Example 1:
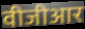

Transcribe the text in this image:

वीजीआर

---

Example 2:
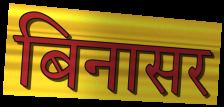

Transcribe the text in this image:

बिनासर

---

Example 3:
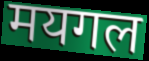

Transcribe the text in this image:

मयगल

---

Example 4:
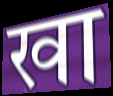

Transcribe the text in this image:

खा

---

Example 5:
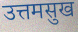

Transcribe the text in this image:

उत्तमसुख